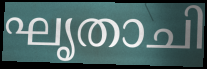
ഘൃതാചി